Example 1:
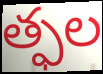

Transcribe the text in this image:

త్ఫల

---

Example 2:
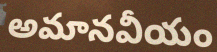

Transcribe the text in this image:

అమానవీయం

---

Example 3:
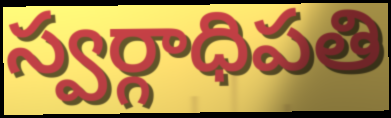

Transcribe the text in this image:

స్వర్గాధిపతి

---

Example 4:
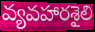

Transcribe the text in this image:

వ్యవహారశైలి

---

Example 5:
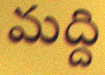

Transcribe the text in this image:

మద్ది